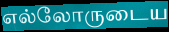
எல்லோருடைய